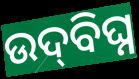
ଉଦ୍‌ବିଘ୍ନ